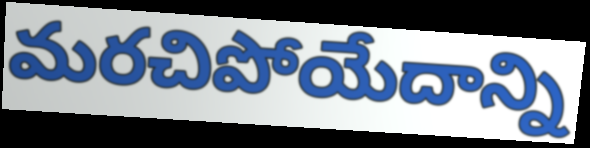
మరచిపోయేదాన్ని